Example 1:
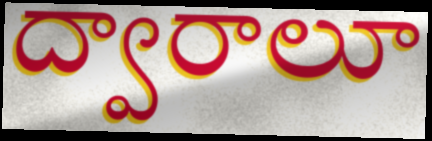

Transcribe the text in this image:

ద్వారాలూ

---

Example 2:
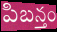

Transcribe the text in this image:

పిబన్తం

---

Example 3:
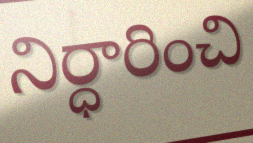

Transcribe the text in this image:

నిర్ధారించి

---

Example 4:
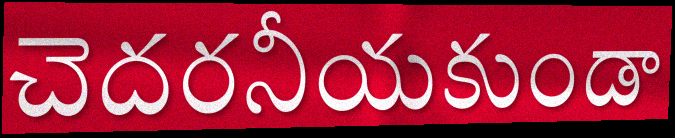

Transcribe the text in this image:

చెదరనీయకుండా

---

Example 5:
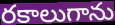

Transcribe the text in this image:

రకాలుగాను